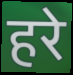
हरे